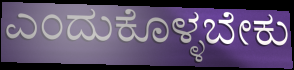
ಎಂದುಕೊಳ್ಳಬೇಕು